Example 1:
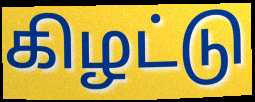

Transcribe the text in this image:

கிழட்டு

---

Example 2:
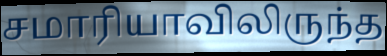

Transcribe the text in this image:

சமாரியாவிலிருந்த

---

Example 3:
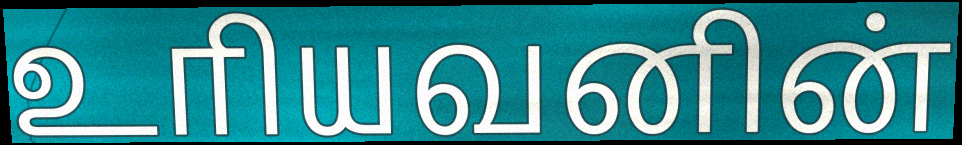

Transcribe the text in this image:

உரியவனின்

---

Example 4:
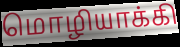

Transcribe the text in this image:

மொழியாக்கி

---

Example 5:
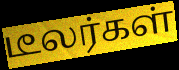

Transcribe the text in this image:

டீலர்கள்